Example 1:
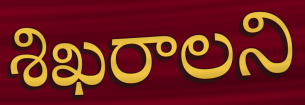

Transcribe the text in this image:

శిఖరాలని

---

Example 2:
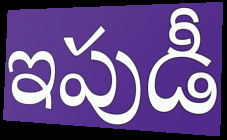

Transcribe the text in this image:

ఇపుడీ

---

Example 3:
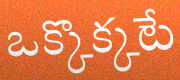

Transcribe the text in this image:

ఒక్కొక్కటే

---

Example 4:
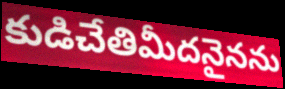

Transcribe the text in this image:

కుడిచేతిమీదనైనను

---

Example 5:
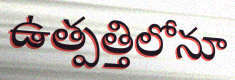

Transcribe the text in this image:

ఉత్పత్తిలోనూ